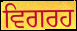
ਵਿਗਰਹ